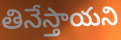
తినేస్తాయని